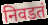
निवडतं